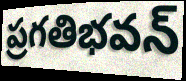
ప్రగతిభవన్